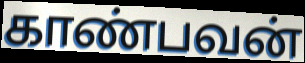
காண்பவன்